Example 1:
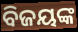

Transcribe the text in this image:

ବିଜୟଙ୍କ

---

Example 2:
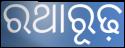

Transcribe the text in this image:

ରଥାରୂଢ଼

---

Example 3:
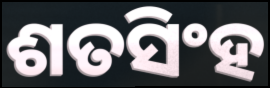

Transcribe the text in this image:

ଶତସିଂହ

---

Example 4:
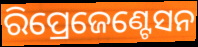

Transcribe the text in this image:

ରିପ୍ରେଜେଣ୍ଟେସନ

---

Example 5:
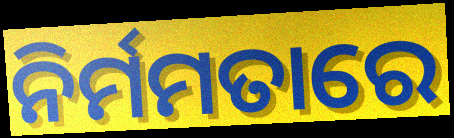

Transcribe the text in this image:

ନିର୍ମମତାରେ